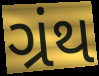
ગ્રંથ